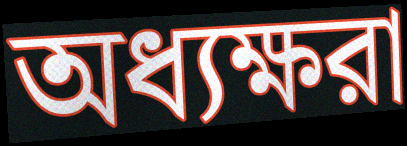
অধ্যক্ষরা